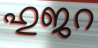
ഹുജറ